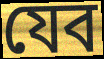
যেব